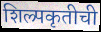
शिल्पकृतीची